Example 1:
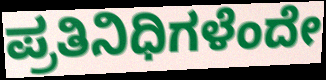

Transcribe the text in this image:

ಪ್ರತಿನಿಧಿಗಳೆಂದೇ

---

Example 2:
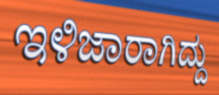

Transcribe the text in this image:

ಇಳಿಜಾರಾಗಿದ್ದು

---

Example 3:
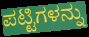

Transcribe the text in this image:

ಪಟ್ಟಿಗಳನ್ನು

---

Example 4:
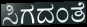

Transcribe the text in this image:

ಸಿಗದಂತೆ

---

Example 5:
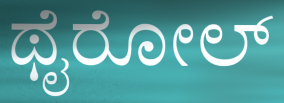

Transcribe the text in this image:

ಥೈರೋಲ್